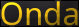
Onda